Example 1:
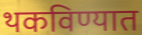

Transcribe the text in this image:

थकविण्यात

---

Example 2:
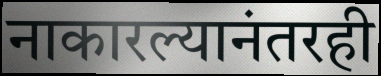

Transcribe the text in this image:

नाकारल्यानंतरही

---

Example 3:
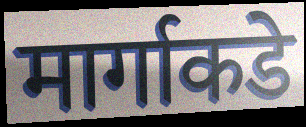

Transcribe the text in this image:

मार्गाकडे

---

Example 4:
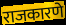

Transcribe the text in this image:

राजकारणे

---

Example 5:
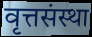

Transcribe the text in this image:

वृत्तसंस्था